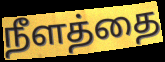
நீளத்தை